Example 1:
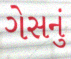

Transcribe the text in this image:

ગેસનું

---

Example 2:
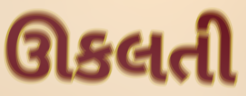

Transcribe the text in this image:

ઊકલતી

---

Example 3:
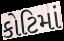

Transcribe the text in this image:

કોટિમાં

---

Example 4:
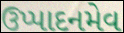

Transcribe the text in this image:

ઉપ્પાદનમેવ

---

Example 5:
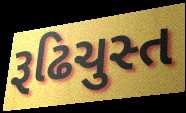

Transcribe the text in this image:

રૂઢિચુસ્ત